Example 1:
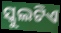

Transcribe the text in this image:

ସ୍କୁଲଟିଏ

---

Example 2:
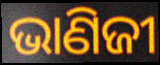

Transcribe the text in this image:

ଭାଣିଜୀ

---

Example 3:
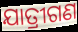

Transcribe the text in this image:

ଯାତ୍ରୀଗଣ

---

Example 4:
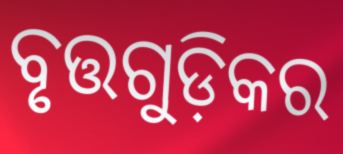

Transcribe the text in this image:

ବୃତ୍ତଗୁଡ଼ିକର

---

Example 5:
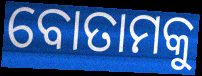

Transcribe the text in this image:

ବୋତାମକୁ